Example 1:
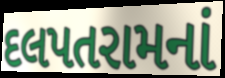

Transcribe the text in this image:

દલપતરામનાં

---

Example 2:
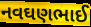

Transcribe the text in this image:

નવઘણભાઈ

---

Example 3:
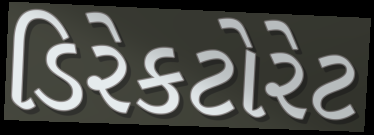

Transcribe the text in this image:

ડિરેકટોરેટ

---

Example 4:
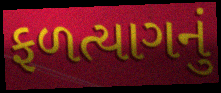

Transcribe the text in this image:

ફળત્યાગનું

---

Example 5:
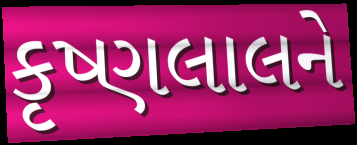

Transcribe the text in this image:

કૃષ્ણલાલને